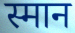
स्मान